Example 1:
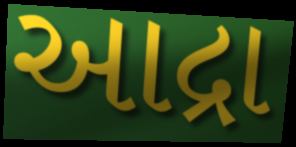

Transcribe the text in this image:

આદ્રા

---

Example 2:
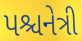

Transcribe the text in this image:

પશ્ચનેત્રી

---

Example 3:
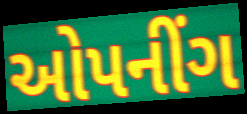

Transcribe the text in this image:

ઓપનીંગ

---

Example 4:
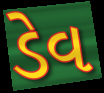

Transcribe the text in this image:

ડેવ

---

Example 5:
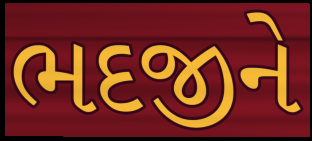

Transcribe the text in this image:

ભદજીને